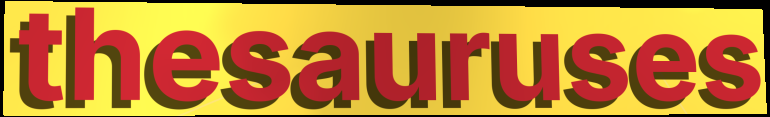
thesauruses